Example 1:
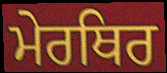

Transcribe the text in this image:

ਮੇਰਥਿਰ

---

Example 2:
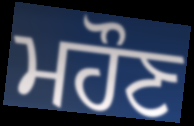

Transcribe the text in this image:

ਮਹੌਣ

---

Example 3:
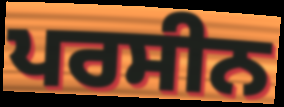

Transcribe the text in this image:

ਪਰਸੀਨ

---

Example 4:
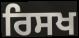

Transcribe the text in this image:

ਰਿਸਖ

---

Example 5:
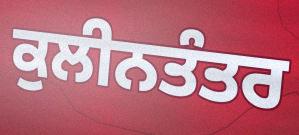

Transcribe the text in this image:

ਕੁਲੀਨਤੰਤਰ